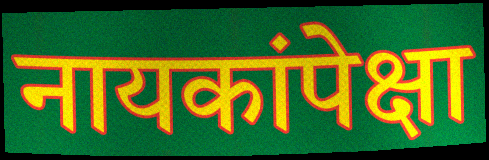
नायकांपेक्षा